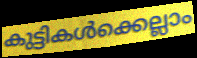
കുട്ടികൾക്കെല്ലാം